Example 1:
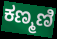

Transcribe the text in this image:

ಕಣ್ಮಣಿ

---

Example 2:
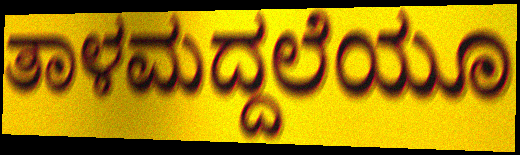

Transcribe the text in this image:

ತಾಳಮದ್ದಲೆಯೂ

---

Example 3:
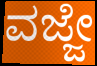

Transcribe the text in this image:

ವಜ್ಜೇ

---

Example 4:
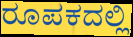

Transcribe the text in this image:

ರೂಪಕದಲ್ಲಿ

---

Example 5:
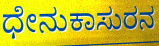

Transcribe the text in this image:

ಧೇನುಕಾಸುರನ